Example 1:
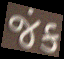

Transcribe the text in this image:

જંક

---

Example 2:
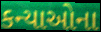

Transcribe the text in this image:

કન્યાઓના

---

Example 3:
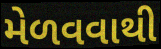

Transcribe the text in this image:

મેળવવાથી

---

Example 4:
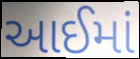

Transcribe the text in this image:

આઈમાં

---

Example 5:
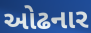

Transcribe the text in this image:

ઓઢનાર